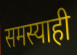
समस्याही